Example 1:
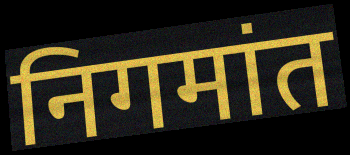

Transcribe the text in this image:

निगमांत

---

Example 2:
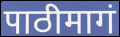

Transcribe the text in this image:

पाठीमागं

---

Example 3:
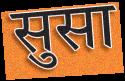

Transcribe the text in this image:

सुसा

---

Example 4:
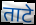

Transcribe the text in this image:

ताटे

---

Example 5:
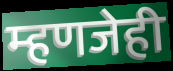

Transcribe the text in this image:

म्हणजेही